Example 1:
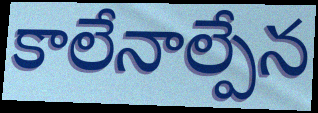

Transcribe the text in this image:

కాలేనాల్పేన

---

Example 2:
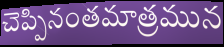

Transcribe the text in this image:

చెప్పినంతమాత్రమున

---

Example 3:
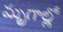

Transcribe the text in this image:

మృగాల్లో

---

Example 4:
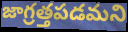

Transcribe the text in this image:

జాగ్రత్తపడమని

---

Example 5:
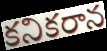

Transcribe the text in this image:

కనికరాన